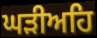
ਘੜੀਅਹਿ